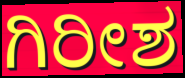
ಗಿರೀಶ